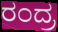
ರಂದ್ರ